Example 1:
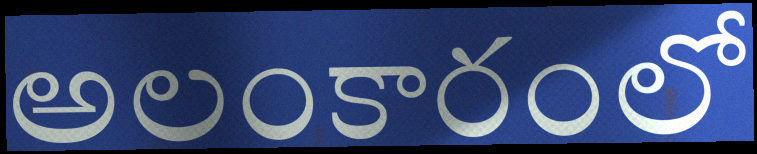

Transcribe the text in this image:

అలంకారంలో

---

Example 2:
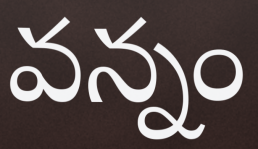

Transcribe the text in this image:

వన్నం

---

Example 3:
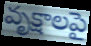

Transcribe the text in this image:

వృక్షాలపై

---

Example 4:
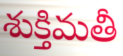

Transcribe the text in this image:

శుక్తిమతీ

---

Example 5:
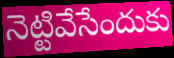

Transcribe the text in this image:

నెట్టివేసేందుకు